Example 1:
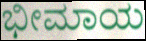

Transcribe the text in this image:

ಭೀಮಾಯ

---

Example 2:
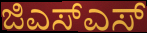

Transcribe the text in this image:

ಜಿಎಸ್ಎಸ್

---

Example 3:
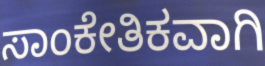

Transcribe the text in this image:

ಸಾಂಕೇತಿಕವಾಗಿ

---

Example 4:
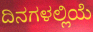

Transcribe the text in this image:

ದಿನಗಳಲ್ಲಿಯೆ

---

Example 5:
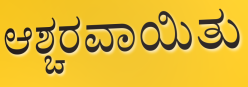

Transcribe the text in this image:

ಆಶ್ಚರವಾಯಿತು